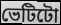
ভেটিটো